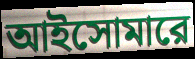
আইসোমারে